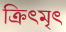
ক্রিৎমৃৎ